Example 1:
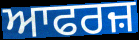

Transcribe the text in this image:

ਆਫਰਜ਼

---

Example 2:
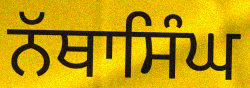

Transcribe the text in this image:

ਨੱਥਾਸਿੰਘ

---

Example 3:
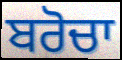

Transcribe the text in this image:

ਬਰੋਚਾ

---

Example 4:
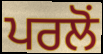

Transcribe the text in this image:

ਪਰਲੋਂ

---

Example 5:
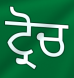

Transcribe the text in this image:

ਟ੍ਰੋਚ